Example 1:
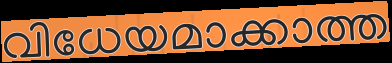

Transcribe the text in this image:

വിധേയമാക്കാത്ത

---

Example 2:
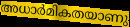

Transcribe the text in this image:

അധാർമികതയാണു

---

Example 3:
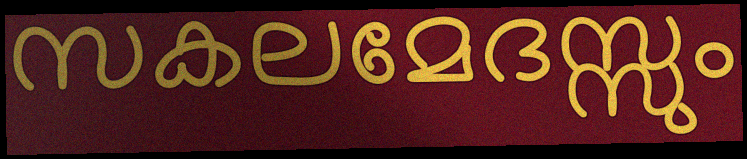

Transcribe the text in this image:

സകലമേദസ്സും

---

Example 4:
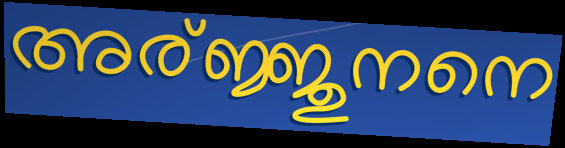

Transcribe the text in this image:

അര്ജ്ജുനനെ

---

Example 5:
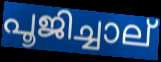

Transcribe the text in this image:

പൂജിച്ചാല്